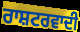
ਰਾਸ਼ਟਰਵਾਦੀ